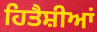
ਹਿਤੈਸ਼ੀਆਂ